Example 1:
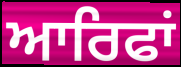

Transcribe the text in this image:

ਆਰਿਫਾਂ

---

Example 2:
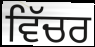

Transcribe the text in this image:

ਵਿੱਚਰ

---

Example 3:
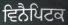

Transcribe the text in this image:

ਵਿਨੈਪਿਟਕ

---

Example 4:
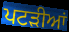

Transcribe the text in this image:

ਪਟਡ਼ੀਆਂ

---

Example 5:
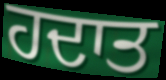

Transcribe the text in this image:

ਹਦਾਤ